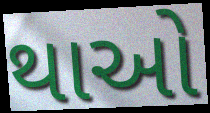
થાઓ